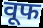
वूफ